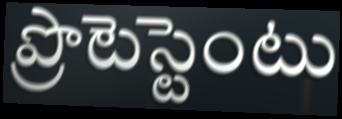
ప్రొటెస్టెంటు